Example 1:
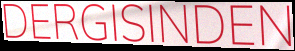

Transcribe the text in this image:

DERGISINDEN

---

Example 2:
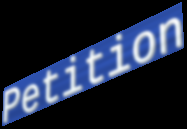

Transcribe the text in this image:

Petition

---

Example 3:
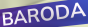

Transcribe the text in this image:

BARODA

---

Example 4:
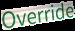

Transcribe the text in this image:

Override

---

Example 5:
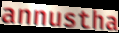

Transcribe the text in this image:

annustha